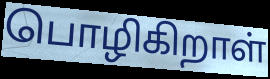
பொழிகிறாள்